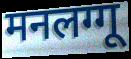
मनलग्गू